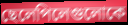
ছেলেপিলেগুলোকে